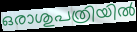
ഒരാശുപത്രിയിൽ